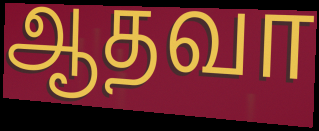
ஆதவா